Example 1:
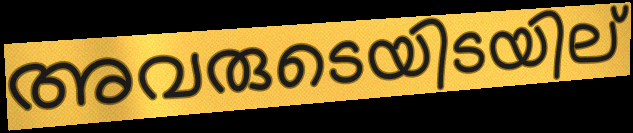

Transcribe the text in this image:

അവരുടെയിടയില്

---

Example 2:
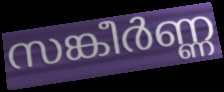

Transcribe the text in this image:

സങ്കീർണ്ണ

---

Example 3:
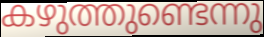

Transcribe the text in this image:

കഴുത്തുണ്ടെന്നു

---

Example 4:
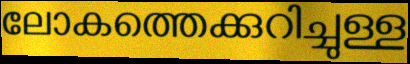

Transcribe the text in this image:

ലോകത്തെക്കുറിച്ചുള്ള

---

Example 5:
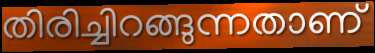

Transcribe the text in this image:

തിരിച്ചിറങ്ങുന്നതാണ്